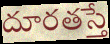
దూరతస్తే